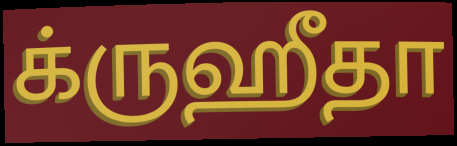
க்ருஹீதா